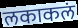
लकाकलं